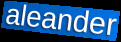
aleander